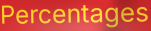
Percentages